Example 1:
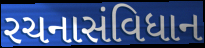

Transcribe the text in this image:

રચનાસંવિધાન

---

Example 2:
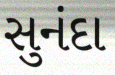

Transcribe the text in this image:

સુનંદા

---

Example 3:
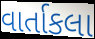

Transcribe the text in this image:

વાર્તાકલા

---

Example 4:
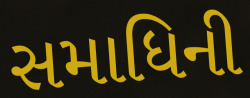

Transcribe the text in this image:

સમાધિની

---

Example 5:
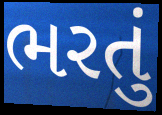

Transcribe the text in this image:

ભરતું